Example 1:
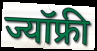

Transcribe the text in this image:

ज्यॉफ्री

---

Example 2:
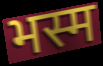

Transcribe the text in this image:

भस्म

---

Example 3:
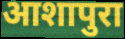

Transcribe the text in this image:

आशापुरा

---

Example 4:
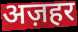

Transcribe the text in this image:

अज़हर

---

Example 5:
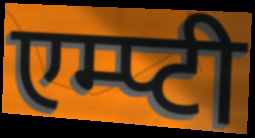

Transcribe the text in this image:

एम्प्टी